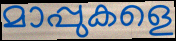
മാപ്പുകളെ